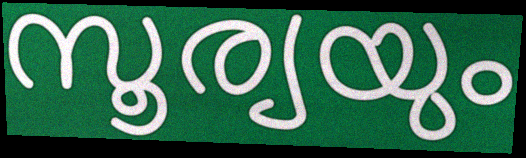
സൂര്യയും